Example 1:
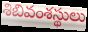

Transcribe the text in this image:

శిబివంశస్థులు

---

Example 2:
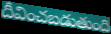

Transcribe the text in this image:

దీవించబడుతుంది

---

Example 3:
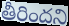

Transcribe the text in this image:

తీరిందని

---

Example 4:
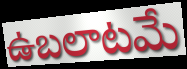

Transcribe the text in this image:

ఉబలాటమే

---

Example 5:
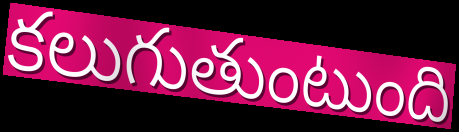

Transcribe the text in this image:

కలుగుతుంటుంది